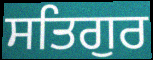
ਸਤਿਗੁਰ